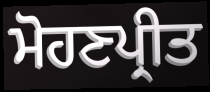
ਮੋਹਣਪ੍ਰੀਤ